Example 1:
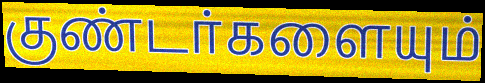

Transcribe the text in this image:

குண்டர்களையும்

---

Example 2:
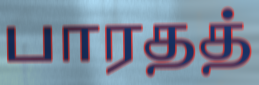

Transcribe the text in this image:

பாரதத்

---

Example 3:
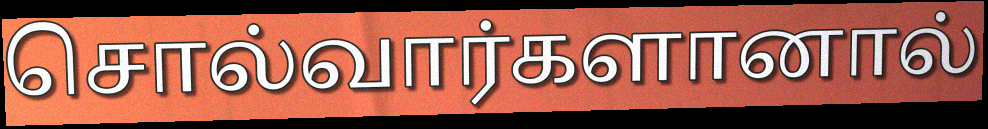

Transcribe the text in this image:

சொல்வார்களானால்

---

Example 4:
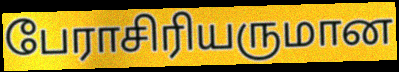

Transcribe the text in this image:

பேராசிரியருமான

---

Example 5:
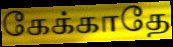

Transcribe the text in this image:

கேக்காதே